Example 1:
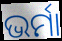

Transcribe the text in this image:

ଭର୍ମା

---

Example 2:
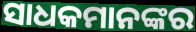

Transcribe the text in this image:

ସାଧକମାନଙ୍କର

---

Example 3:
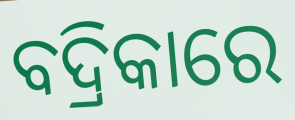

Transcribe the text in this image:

ବଦ୍ରିକାରେ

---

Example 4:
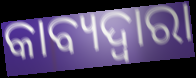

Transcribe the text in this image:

କାବ୍ୟଦ୍ୱାରା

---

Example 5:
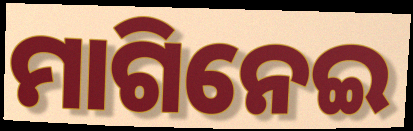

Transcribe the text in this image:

ମାଗିନେଇ